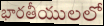
భారతీయులలో